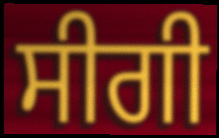
ਸੀਗੀ